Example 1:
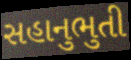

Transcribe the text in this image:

સહાનુભુતી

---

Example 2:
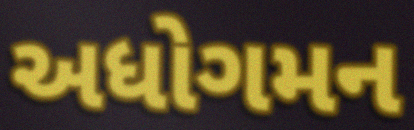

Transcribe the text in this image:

અધોગમન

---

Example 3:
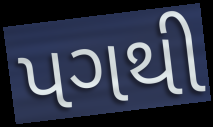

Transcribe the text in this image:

પગથી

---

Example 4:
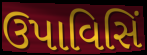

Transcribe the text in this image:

ઉપાવિસિં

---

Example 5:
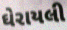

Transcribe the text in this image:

ઘેરાયલી